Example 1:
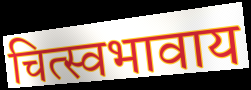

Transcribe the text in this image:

चित्स्वभावाय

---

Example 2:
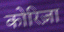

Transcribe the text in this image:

कोरिज़ा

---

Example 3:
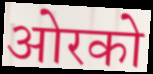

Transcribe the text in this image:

ओरको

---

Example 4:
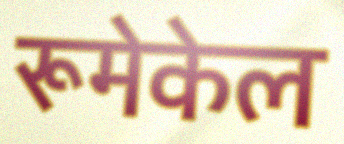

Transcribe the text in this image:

रूमेकेल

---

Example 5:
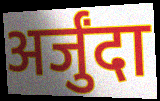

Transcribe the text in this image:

अर्जुंदा